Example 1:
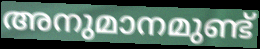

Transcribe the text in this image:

അനുമാനമുണ്ട്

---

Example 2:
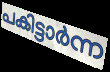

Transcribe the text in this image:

പകിട്ടാർന്ന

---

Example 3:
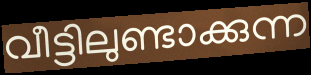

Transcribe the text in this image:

വീട്ടിലുണ്ടാക്കുന്ന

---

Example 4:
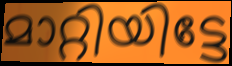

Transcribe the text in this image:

മാറ്റിയിട്ടേ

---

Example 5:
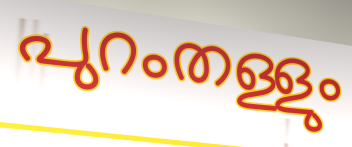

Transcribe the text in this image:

പുറംതള്ളും